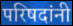
परिषदांनी